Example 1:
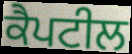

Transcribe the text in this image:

ਕੈਪਟੀਲ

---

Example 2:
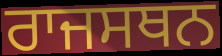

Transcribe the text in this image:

ਰਾਜਸਥਨ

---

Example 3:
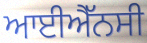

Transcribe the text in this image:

ਆਈਐੱਨਸੀ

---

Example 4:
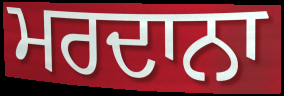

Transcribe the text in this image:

ਮਰਦਾਨਾ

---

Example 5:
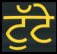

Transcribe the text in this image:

ਟੁੱਟੇ